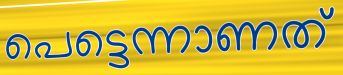
പെട്ടെന്നാണത്